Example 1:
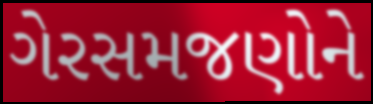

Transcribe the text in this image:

ગેરસમજણોને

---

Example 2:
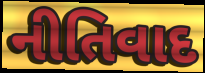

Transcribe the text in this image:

નીતિવાદ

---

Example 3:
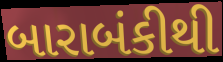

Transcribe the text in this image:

બારાબંકીથી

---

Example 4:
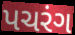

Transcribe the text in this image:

પચરંગ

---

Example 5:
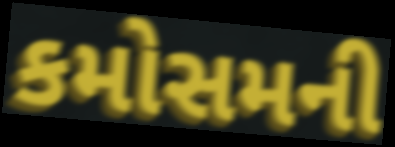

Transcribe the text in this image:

કમોસમની